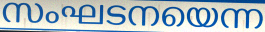
സംഘടനയെന്ന